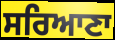
ਸਰਿਆਣਾ